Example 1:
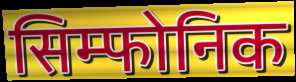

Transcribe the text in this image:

सिम्फोनिक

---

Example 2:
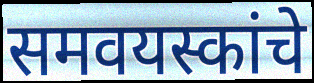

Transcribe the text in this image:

समवयस्कांचे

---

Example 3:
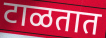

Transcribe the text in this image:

टाळतात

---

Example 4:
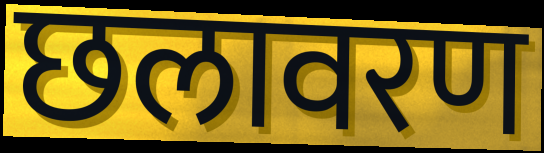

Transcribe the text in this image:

छलावरण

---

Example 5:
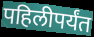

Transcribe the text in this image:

पहिलीपर्यंत